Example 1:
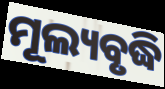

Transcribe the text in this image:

ମୂଲ୍ୟବୃଦ୍ଧି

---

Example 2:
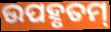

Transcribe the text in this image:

ଉପହୃତମ୍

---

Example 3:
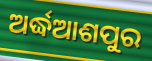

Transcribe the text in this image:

ଅର୍ଦ୍ଧଆଶପୁର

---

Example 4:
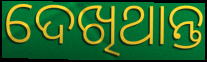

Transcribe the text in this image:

ଦେଖିଥାନ୍ତ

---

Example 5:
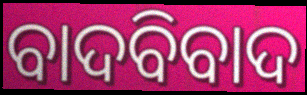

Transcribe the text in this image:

ବାଦବିବାଦ